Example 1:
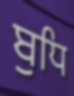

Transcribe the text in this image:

ਬੁਧਿ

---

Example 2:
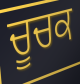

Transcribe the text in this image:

ਚੂਚਕ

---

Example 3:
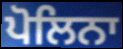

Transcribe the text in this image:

ਪੋਲਿਨਾ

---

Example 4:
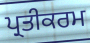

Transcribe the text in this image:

ਪ੍ਰਤੀਕਰਮ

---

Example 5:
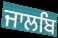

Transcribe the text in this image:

ਜਾਲਬਿ